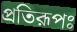
প্রতিরূপঃ